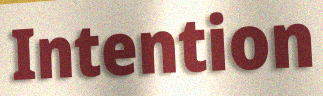
Intention